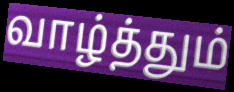
வாழ்த்தும்